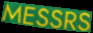
MESSRS